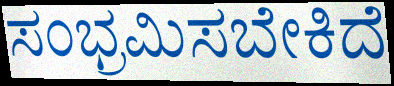
ಸಂಭ್ರಮಿಸಬೇಕಿದೆ